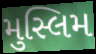
મુસ્લિમ